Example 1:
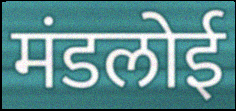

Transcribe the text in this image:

मंडलोई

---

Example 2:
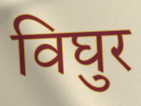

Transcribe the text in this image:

विघुर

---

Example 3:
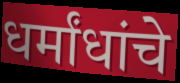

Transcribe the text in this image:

धर्मांधांचे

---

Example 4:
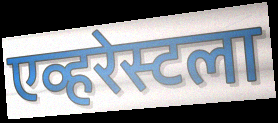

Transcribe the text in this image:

एव्हरेस्टला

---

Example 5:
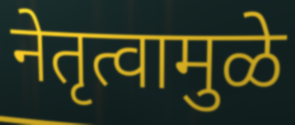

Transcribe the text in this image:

नेतृत्वामुळे